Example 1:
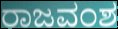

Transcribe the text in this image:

ರಾಜವಂಶ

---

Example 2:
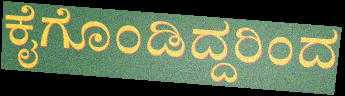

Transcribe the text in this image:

ಕೈಗೊಂಡಿದ್ದರಿಂದ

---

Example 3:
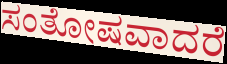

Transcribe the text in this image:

ಸಂತೋಷವಾದರೆ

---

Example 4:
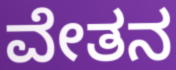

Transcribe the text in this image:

ವೇತನ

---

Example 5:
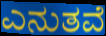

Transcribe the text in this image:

ಎನುತವೆ